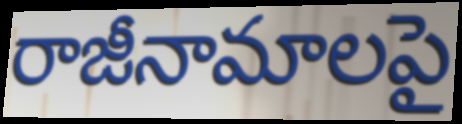
రాజీనామాలపై